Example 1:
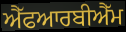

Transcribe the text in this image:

ਐੱਫਆਰਬੀਐੱਮ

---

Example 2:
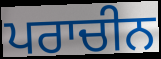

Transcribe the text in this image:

ਪਰਾਚੀਨ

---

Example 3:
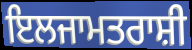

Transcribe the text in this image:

ਇਲਜਾਮਤਰਾਸ਼ੀ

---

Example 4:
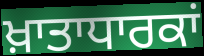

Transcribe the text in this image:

ਖ਼ਾਤਾਧਾਰਕਾਂ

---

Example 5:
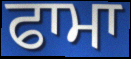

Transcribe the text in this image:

ਫਾਮਾ